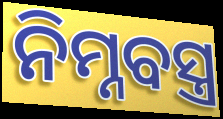
ନିମ୍ନବସ୍ତ୍ର